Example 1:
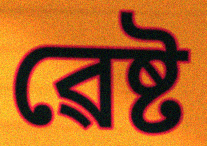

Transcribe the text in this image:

ৱেষ্ট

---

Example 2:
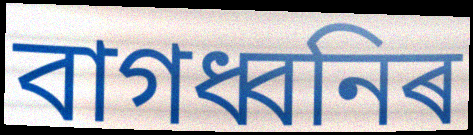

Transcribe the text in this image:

বাগধ্বনিৰ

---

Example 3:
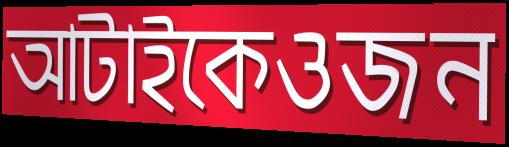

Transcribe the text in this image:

আটাইকেওজন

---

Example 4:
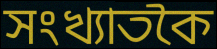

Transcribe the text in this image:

সংখ্যাতকৈ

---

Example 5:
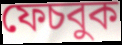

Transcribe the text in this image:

ফেচবুক